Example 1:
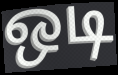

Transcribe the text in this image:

ஒடி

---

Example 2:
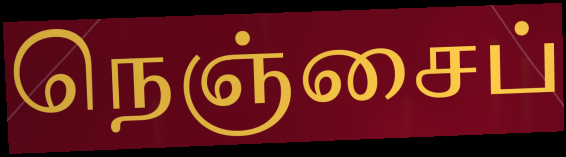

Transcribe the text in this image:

நெஞ்சைப்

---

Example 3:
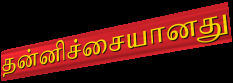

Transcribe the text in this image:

தன்னிச்சையானது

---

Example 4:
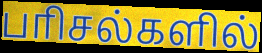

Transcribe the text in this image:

பரிசல்களில்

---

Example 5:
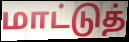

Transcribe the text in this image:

மாட்டுத்